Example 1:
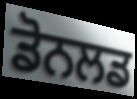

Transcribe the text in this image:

ਡੋਨਲਡ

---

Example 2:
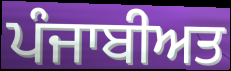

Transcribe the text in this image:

ਪੰਜਾਬੀਅਤ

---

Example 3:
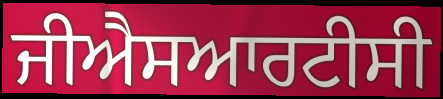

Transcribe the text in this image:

ਜੀਐਸਆਰਟੀਸੀ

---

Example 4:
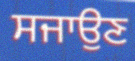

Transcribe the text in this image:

ਸਜਾਉਣ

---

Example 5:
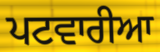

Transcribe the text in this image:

ਪਟਵਾਰੀਆ